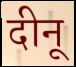
दीनू